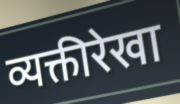
व्यक्तीरेखा